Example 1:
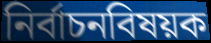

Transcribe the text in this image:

নির্বাচনবিষয়ক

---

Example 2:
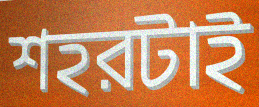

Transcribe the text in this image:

শহরটাই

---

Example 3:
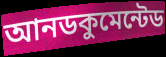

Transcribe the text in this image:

আনডকুমেন্টেড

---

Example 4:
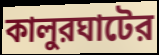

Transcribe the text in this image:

কালুরঘাটের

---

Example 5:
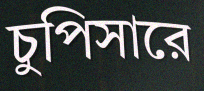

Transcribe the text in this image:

চুপিসারে